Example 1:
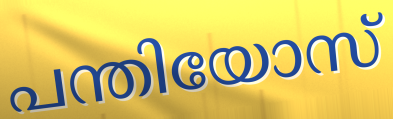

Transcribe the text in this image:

പന്തിയോസ്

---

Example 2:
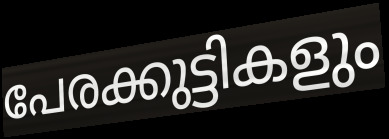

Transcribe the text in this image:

പേരക്കുട്ടികളും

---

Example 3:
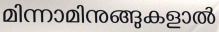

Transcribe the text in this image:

മിന്നാമിനുങ്ങുകളാൽ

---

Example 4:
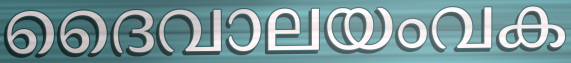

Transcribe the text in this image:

ദൈവാലയംവക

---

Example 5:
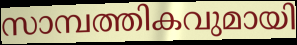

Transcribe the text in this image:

സാമ്പത്തികവുമായി